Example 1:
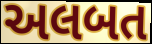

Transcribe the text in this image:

અલબત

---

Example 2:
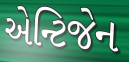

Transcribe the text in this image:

એન્ટિજેન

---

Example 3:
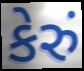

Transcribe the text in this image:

કેરું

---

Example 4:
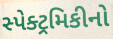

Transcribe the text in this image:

સ્પેક્ટ્રમિકીનો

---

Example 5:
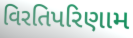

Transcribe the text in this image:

વિરતિપરિણામ